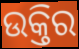
ଉକ୍ତିର